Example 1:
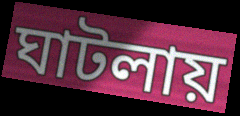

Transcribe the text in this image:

ঘাটলায়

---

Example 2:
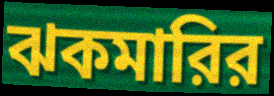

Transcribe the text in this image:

ঝকমারির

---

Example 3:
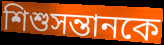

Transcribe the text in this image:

শিশুসন্তানকে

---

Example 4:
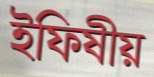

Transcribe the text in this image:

ইফিষীয়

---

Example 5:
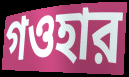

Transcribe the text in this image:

গওহার